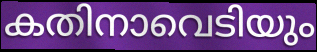
കതിനാവെടിയും